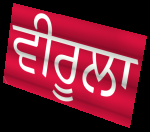
ਵੀਰੂਲਾ